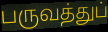
பருவத்துப்